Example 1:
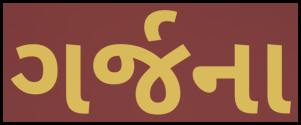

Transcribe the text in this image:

ગર્જના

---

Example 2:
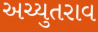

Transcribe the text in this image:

અચ્યુતરાવ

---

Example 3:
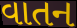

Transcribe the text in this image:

વાતન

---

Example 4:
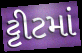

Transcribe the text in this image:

ટ્ટીટમાં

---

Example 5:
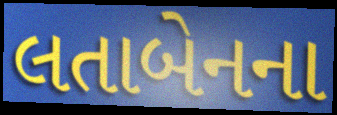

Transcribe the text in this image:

લતાબેનના